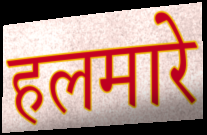
हलमारे